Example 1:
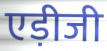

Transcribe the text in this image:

एड़ीजी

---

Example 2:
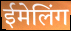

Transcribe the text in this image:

ईमेलिंग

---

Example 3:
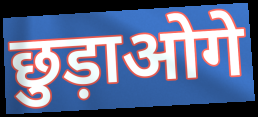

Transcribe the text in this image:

छुड़ाओगे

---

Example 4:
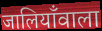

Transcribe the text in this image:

जालियाँवाला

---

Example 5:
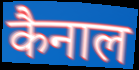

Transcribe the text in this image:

कैनाल